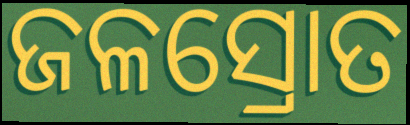
ଜଳସ୍ରୋତ